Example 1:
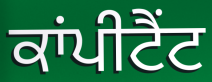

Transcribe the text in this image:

ਕਾਂਪੀਟੈਂਟ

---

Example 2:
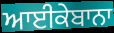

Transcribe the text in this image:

ਆਈਕੇਬਾਨਾ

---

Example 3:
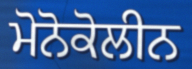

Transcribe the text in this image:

ਮੋਨੋਕੋਲੀਨ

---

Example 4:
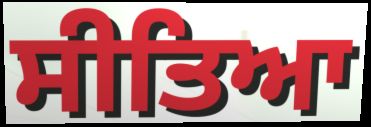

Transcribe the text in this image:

ਸੀਤਿਆ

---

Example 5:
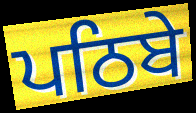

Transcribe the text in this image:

ਪਠਿਬੇ